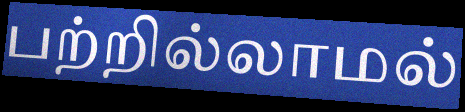
பற்றில்லாமல்